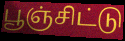
பூஞ்சிட்டு